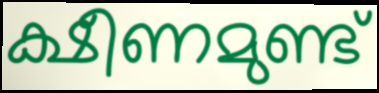
ക്ഷീണമുണ്ട്